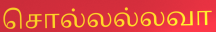
சொல்லல்லவா